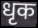
धृक